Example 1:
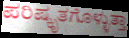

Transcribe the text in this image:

ಪರಿಷ್ಕೃತಗೊಳ್ಳುತ್ತಾ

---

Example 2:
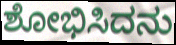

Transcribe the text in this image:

ಶೋಭಿಸಿದನು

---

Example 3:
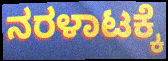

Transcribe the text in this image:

ನರಳಾಟಕ್ಕೆ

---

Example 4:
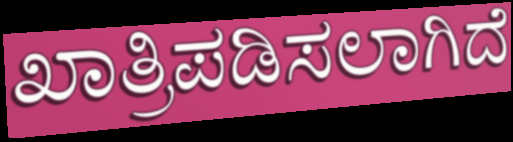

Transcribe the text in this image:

ಖಾತ್ರಿಪಡಿಸಲಾಗಿದೆ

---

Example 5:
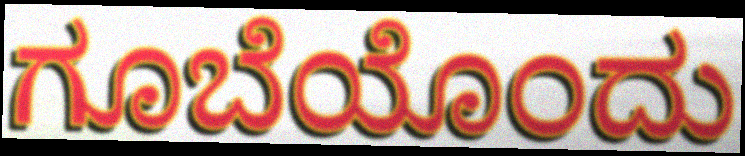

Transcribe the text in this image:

ಗೂಬೆಯೊಂದು